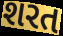
શરત